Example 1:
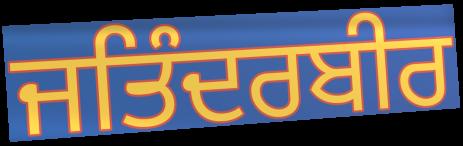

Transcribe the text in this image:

ਜਤਿੰਦਰਬੀਰ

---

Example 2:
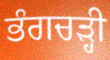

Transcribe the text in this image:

ਭੰਗਚੜ੍ਹੀ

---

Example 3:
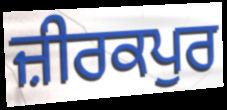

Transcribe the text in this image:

ਜ਼ੀਰਕਪੁਰ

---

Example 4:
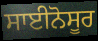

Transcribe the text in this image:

ਸਾਈਨੋਸੂਰ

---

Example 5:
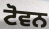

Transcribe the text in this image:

ਟੋਵਨ